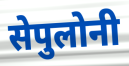
सेपुलोनी